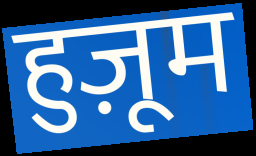
हुज़ूम